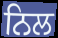
ਨਿਲ